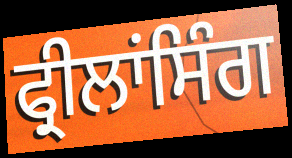
ਫ੍ਰੀਲਾਂਸਿੰਗ